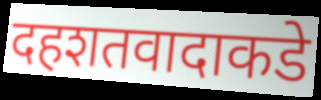
दहशतवादाकडे